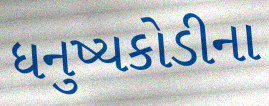
ધનુષ્યકોડીના